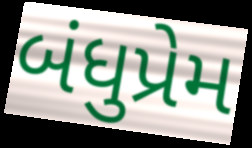
બંધુપ્રેમ